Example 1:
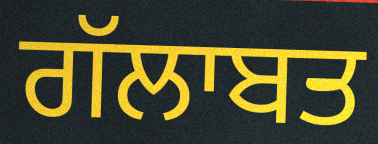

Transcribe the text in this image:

ਗੱਲਾਬਤ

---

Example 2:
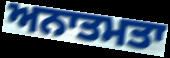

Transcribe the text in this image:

ਅਨਾਤਮਤਾ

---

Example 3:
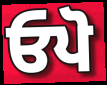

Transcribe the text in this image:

ਓਪੋ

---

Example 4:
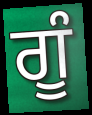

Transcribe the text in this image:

ਗੂੰ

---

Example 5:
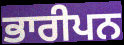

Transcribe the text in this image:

ਭਾਰੀਪਨ